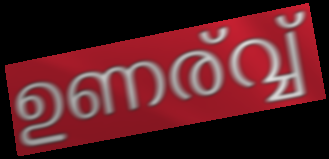
ഉണര്വ്വ്